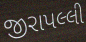
જીરાપલ્લી